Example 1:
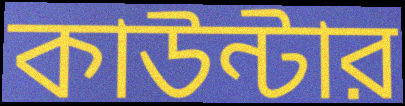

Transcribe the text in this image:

কাউন্টার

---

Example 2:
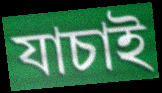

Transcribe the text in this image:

যাচাই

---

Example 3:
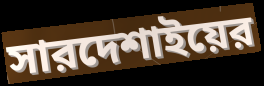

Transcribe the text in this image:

সারদেশাইয়ের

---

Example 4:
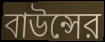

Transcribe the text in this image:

বাউন্সের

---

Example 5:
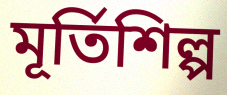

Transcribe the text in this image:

মূর্তিশিল্প